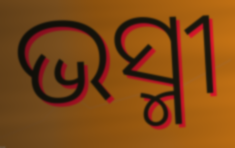
ଭସ୍ମୀ